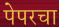
पेपरचा